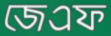
জেএফ